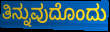
ತಿನ್ನುವುದೊಂದು